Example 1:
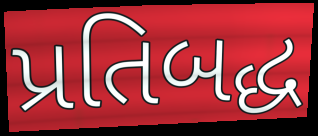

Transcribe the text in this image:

પ્રતિબદ્ધ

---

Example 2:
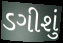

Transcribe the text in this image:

ડગીશું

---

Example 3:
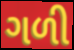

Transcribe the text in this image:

ગળી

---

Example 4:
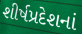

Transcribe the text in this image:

શીર્ષપ્રદેશનાં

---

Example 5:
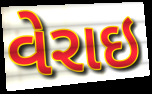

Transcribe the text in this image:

વેરાઇ